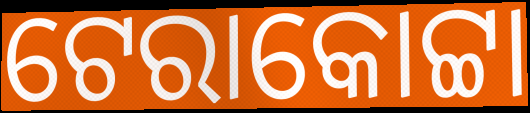
ଟେରାକୋଟ୍ଟା